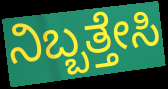
ನಿಬ್ಬತ್ತೇಸಿ